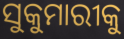
ସୁକୁମାରୀକୁ